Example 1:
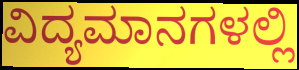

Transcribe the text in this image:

ವಿದ್ಯಮಾನಗಳಲ್ಲಿ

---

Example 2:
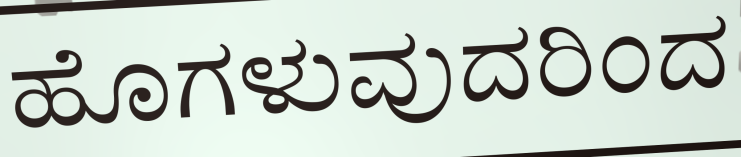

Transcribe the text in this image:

ಹೊಗಳುವುದರಿಂದ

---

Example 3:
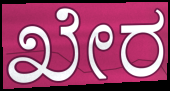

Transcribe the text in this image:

ಖೇರ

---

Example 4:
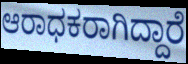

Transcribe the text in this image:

ಆರಾಧಕರಾಗಿದ್ದಾರೆ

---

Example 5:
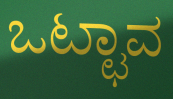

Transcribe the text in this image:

ಒಟ್ಟಾವ